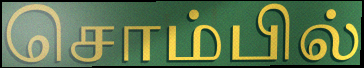
சொம்பில்